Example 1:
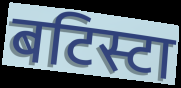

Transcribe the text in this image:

बटिस्टा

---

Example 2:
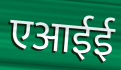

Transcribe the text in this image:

एआईई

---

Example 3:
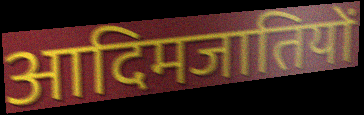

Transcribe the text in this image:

आदिमजातियों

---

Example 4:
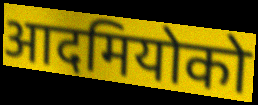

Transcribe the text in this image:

आदमियोको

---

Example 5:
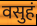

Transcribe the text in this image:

वसुहं